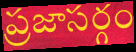
ప్రజాసర్గం